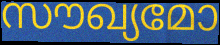
സൗഖ്യമോ